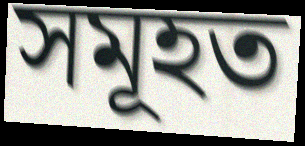
সমূহত